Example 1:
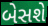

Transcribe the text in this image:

બેસશે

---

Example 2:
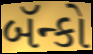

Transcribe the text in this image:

બૅન્કો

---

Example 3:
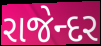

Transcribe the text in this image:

રાજેન્દર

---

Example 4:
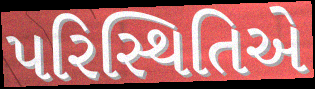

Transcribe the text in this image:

પરિસ્થિતિએ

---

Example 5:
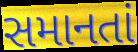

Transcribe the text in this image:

સમાનતાં